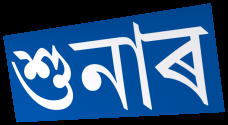
শুনাৰ